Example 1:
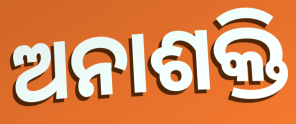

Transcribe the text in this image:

ଅନାଶକ୍ତି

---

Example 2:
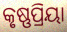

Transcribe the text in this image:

କୃଷ୍ଣପ୍ରିୟା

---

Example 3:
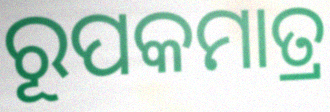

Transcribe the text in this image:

ରୂପକମାତ୍ର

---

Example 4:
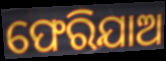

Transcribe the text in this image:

ଫେରିଯାଅ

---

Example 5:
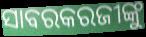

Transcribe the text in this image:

ସାବରକରଜୀଙ୍କୁ